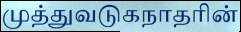
முத்துவடுகநாதரின்